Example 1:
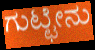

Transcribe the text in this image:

ಗುಟ್ಟೇನು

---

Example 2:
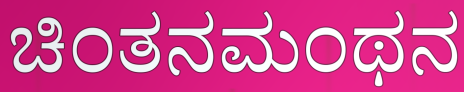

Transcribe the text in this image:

ಚಿಂತನಮಂಥನ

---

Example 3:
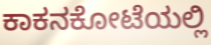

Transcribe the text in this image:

ಕಾಕನಕೋಟೆಯಲ್ಲಿ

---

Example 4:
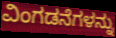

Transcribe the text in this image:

ವಿಂಗಡನೆಗಳನ್ನು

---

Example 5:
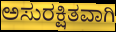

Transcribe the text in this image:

ಅಸುರಕ್ಷಿತವಾಗಿ